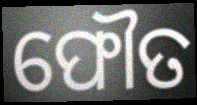
ଫୌତ